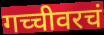
गच्चीवरचं